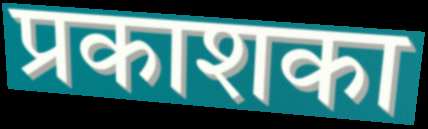
प्रकाशका